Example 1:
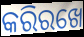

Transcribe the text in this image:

କରିରଖେ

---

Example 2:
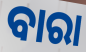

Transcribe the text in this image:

ବାରା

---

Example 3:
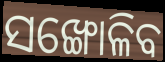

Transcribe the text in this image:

ସଙ୍ଖୋଳିବ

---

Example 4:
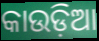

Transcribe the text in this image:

କାଉଡ଼ିଆ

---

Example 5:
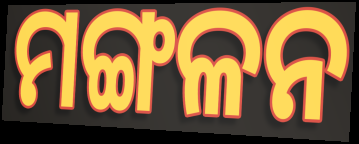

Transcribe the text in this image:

ମଙ୍ଗଳନ